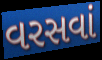
વરસવાં